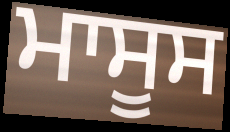
ਮਾਸੂਸ